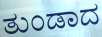
ತುಂಡಾದ